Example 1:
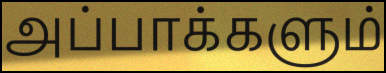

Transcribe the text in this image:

அப்பாக்களும்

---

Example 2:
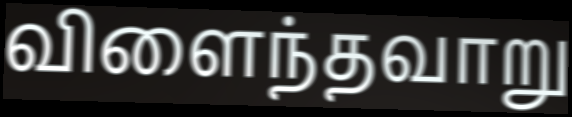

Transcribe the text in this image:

விளைந்தவாறு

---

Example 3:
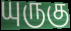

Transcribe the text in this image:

யுருகு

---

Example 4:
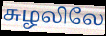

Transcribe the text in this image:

சுழலிலே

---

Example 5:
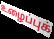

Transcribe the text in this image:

உழைப்புக்